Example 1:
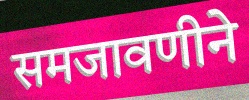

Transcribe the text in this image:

समजावणीने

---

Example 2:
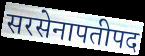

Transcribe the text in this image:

सरसेनापतीपद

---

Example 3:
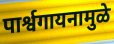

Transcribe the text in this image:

पार्श्वगायनामुळे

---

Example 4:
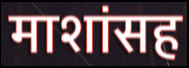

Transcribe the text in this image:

माशांसह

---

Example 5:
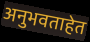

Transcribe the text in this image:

अनुभवताहेत